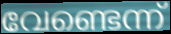
വേണ്ടെന്ന്